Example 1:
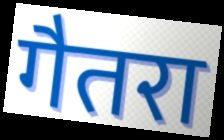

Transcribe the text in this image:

गैतरा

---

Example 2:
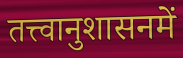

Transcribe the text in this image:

तत्त्वानुशासनमें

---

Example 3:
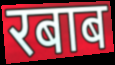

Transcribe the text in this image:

रबाब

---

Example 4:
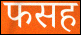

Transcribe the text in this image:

फसह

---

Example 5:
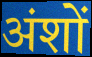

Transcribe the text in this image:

अंशों